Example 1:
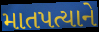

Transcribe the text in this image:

માતપત્યાને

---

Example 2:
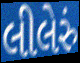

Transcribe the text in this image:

લીલેરું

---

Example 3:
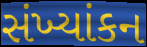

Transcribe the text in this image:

સંખ્યાંકન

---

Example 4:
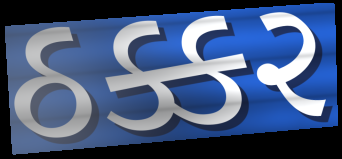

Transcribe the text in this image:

ઠક્કર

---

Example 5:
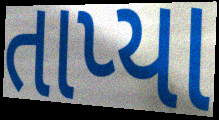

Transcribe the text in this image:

તાપ્યા